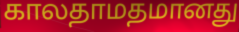
காலதாமதமானது